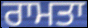
ਰਾਮਤਾ